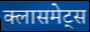
क्लासमेट्स